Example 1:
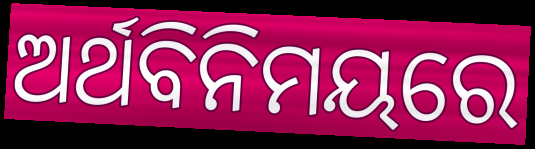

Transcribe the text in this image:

ଅର୍ଥବିନିମୟରେ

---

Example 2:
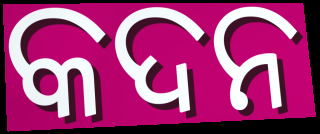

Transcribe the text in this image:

କଦନ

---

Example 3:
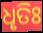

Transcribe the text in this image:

ଧୃତିଃ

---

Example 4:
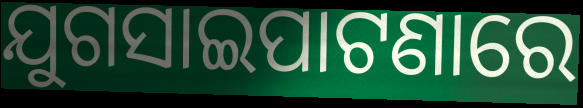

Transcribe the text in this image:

ଯୁଗସାଇପାଟଣାରେ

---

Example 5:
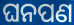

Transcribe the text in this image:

ଘନପଣ